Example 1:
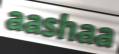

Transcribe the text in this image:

aashaa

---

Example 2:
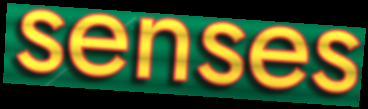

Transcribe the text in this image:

senses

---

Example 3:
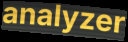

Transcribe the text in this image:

analyzer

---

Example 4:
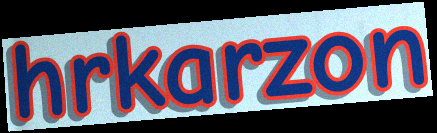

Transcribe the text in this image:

hrkarzon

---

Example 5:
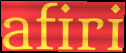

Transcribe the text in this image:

afiri